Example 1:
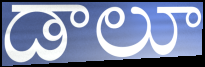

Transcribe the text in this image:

డాలూ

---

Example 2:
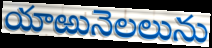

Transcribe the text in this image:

యాఱునెలలును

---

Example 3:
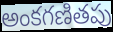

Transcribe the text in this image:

అంకగణితపు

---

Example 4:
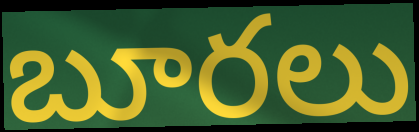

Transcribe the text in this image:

బూరలు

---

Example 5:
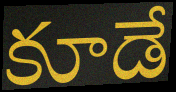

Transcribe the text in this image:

కూడే